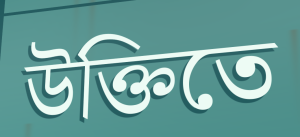
উক্তিতে